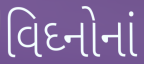
વિઘ્નોનાં